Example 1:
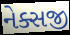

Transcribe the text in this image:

નેક્સજી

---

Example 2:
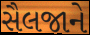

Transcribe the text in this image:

સૈલજાને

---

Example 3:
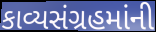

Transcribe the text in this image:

કાવ્યસંગ્રહમાંની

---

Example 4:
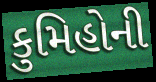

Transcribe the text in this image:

કુમિહોની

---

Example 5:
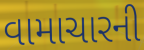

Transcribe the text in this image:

વામાચારની